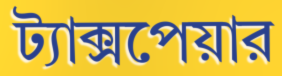
ট্যাক্সপেয়ার